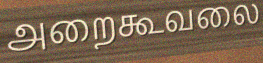
அறைகூவலை